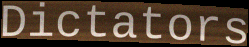
Dictators